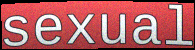
sexual